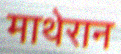
माथेरान